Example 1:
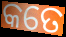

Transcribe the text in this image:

କତେ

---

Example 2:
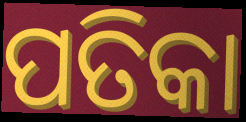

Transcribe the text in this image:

ପତିକା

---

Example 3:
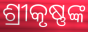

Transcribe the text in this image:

ଶ୍ରୀକୃଷ୍ଣଙ୍କ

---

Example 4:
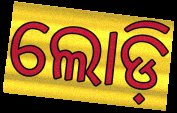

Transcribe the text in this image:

ଲୋଡ଼ି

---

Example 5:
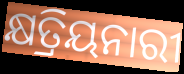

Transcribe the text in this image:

କ୍ଷତ୍ରିୟନାରୀ